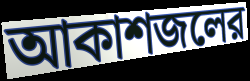
আকাশজলের